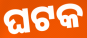
ଘଟକ